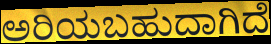
ಅರಿಯಬಹುದಾಗಿದೆ